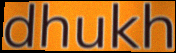
dhukh